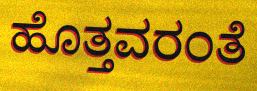
ಹೊತ್ತವರಂತೆ